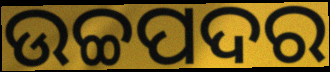
ଉଚ୍ଚପଦର